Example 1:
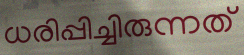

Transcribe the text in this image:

ധരിപ്പിച്ചിരുന്നത്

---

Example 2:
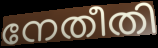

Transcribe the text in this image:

നേതീതി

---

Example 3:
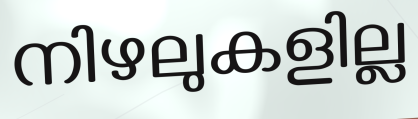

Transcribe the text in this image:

നിഴലുകളില്ല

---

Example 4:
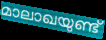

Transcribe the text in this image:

മാലാഖയുണ്ട്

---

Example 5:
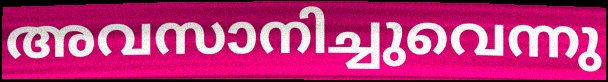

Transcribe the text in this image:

അവസാനിച്ചുവെന്നു